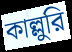
কাল্লুরি